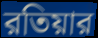
রতিয়ার